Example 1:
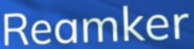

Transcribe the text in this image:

Reamker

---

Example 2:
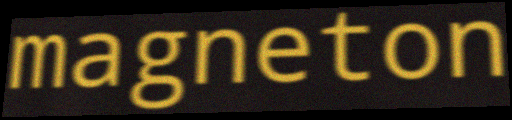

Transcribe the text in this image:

magneton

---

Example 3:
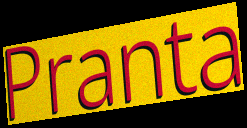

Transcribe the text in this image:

Pranta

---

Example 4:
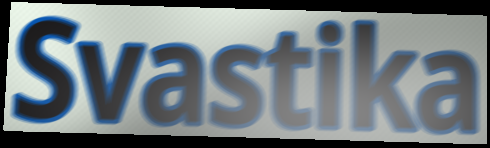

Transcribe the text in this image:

Svastika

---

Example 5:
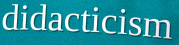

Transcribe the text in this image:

didacticism